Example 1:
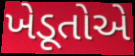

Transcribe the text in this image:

ખેડૂતોએ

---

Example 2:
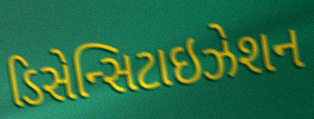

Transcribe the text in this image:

ડિસેન્સિટાઇઝેશન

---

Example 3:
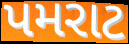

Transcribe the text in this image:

પમરાટ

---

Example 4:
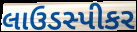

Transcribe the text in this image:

લાઉડસ્પીકર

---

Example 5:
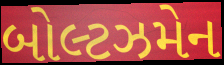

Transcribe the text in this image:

બોલ્ટઝમેન